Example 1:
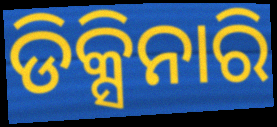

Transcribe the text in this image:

ଡିକ୍ସିନାରି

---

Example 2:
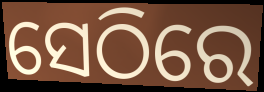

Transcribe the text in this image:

ସେଠିରେ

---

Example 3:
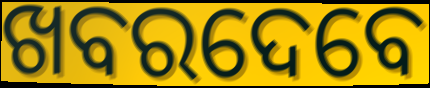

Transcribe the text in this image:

ଖବରଦେବେ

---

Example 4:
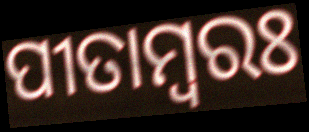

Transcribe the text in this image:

ପୀତାମ୍ୱରଃ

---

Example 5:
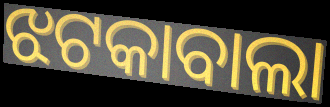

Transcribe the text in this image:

ଝଟକାବାଲା